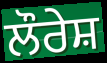
ਲੌਰੇਸ਼